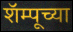
शॅम्पूच्या